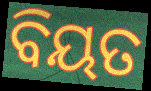
ବିୟତ